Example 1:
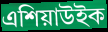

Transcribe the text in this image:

এশিয়াউইক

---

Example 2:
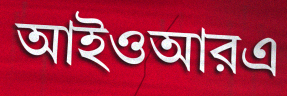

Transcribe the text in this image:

আইওআরএ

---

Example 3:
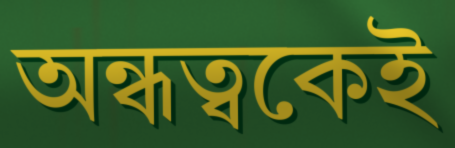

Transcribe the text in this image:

অন্ধত্বকেই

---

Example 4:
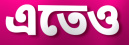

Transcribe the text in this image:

এতেও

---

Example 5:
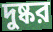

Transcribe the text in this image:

দুষ্কর